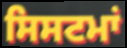
ਸਿਸਟਮਾਂ